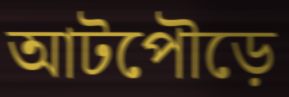
আটপৌড়ে